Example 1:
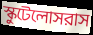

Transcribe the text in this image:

স্কুটেলোসরাস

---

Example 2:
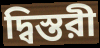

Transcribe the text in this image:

দ্বিস্তরী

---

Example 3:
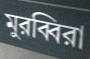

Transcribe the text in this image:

মুরব্বিরা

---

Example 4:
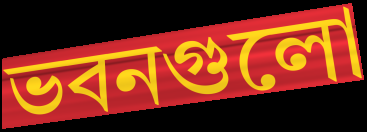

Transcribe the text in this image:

ভবনগুলো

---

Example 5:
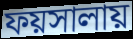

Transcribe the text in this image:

ফয়সালায়